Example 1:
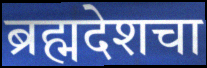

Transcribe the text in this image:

ब्रह्मदेशचा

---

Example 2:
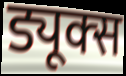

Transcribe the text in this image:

ड्यूक्‍स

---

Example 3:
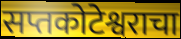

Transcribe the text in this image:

सप्तकोटेश्वराचा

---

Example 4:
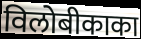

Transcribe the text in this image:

विलोबीकाका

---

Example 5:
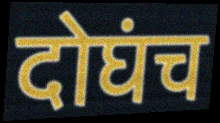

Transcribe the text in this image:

दोघंच